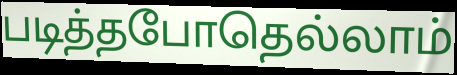
படித்தபோதெல்லாம்